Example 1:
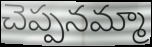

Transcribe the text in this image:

చెప్పనమ్మా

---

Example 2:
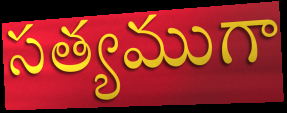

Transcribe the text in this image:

సత్యముగా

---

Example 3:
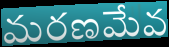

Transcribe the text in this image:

మరణమేవ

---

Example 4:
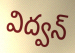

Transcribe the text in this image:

విద్వన్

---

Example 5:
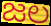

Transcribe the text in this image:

జల